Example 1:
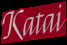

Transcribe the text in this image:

Katai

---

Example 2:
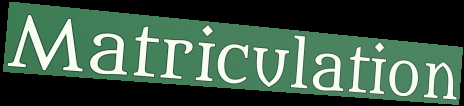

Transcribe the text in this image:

Matriculation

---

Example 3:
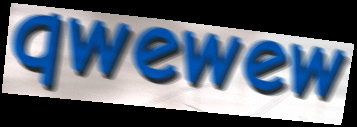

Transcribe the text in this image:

qwewew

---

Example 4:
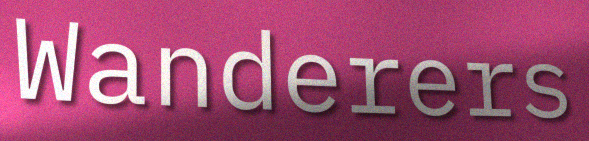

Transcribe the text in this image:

Wanderers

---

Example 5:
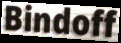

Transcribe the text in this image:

Bindoff